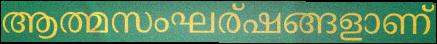
ആത്മസംഘര്ഷങ്ങളാണ്